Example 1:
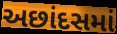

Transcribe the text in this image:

અછાંદસમાં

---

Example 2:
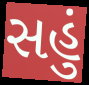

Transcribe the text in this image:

સહું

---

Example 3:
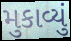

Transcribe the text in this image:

મુકાવ્યું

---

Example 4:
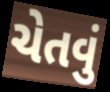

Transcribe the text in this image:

ચેતવું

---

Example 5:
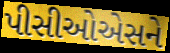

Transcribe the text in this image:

પીસીઓએસને